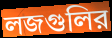
লজগুলির